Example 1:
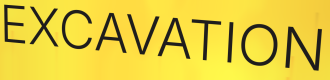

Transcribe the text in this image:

EXCAVATION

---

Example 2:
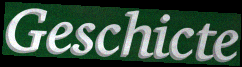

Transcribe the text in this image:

Geschicte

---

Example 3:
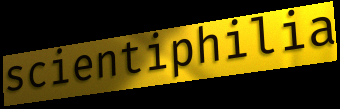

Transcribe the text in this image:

scientiphilia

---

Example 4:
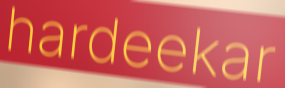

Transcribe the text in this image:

hardeekar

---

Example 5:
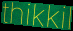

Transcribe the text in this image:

thikkil